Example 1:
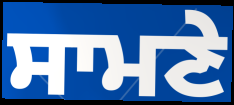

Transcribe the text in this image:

ਸਾਮਣੇ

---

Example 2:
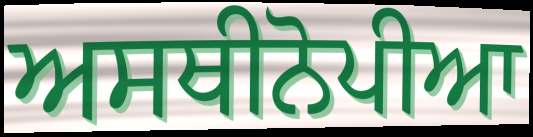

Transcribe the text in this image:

ਅਸਥੀਨੋਪੀਆ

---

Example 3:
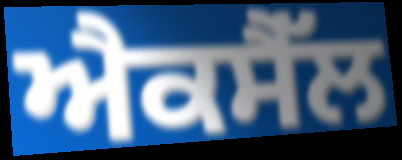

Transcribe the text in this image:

ਐਕਸੈੱਲ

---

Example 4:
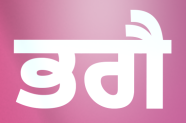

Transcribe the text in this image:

ਭਗੈ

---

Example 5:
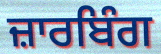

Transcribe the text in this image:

ਜ਼ਾਰਬਿੰਗ